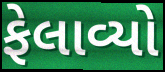
ફેલાવ્યો